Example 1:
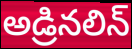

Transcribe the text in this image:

అడ్రినలిన్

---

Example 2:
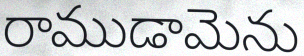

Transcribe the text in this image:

రాముడామెను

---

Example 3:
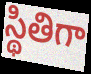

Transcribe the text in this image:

స్థితిగా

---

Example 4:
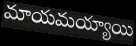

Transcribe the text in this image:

మాయమయ్యాయి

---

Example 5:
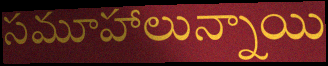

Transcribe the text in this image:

సమూహాలున్నాయి